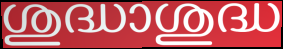
ശുദ്ധാശുദ്ധ